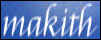
makith